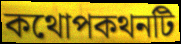
কথোপকথনটি